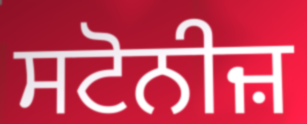
ਸਟੋਨੀਜ਼